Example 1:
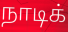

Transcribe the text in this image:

நாடிக்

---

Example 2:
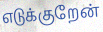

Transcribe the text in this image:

எடுக்குறேன்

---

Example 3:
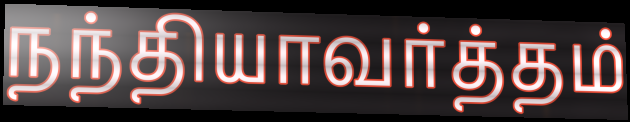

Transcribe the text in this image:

நந்தியாவர்த்தம்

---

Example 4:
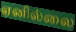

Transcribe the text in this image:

ஏனில்லை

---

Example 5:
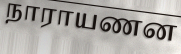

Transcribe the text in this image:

நாராயணன